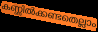
കണ്ണിൽക്കണ്ടതെല്ലാം